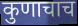
कुणाचाच